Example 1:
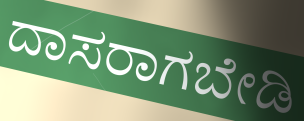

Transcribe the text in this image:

ದಾಸರಾಗಬೇಡಿ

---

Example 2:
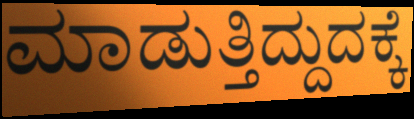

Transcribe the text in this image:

ಮಾಡುತ್ತಿದ್ದುದಕ್ಕೆ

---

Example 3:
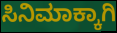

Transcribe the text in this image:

ಸಿನಿಮಾಕ್ಕಾಗಿ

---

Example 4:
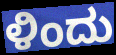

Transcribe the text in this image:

ಳಿಂದು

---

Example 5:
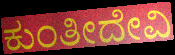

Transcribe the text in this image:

ಕುಂತೀದೇವಿ